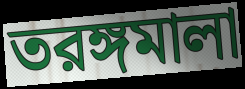
তরঙ্গমালা